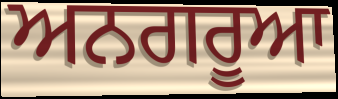
ਅਨਗਰੂਆ